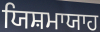
ਯਿਸ਼ਮਾਯਾਹ